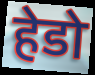
हेडो